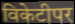
विकेटीपर